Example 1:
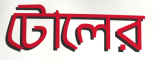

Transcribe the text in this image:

টোলের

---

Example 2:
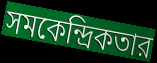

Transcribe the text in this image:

সমকেন্দ্রিকতার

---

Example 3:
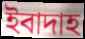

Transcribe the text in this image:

ইবাদাহ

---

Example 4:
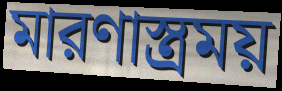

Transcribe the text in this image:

মারণাস্ত্রময়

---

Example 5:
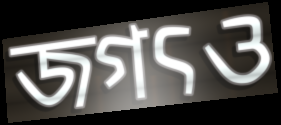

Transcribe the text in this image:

জগৎও